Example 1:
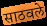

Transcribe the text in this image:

साठवले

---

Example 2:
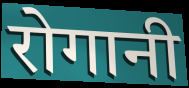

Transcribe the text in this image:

रोगानी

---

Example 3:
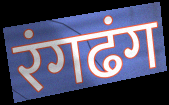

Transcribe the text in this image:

रंगढंग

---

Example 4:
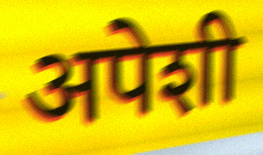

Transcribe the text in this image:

अपेशी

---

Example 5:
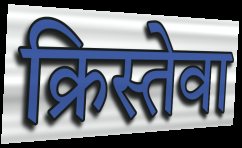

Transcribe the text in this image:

क्रिस्तेवा